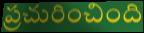
ప్రచురించింది